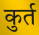
कुर्त